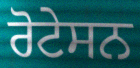
ਰੋਟੇਸਨ